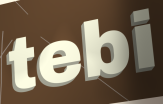
tebi